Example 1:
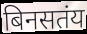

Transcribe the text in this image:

बिनसतंय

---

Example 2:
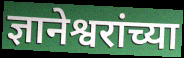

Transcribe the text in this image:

ज्ञानेश्वरांच्या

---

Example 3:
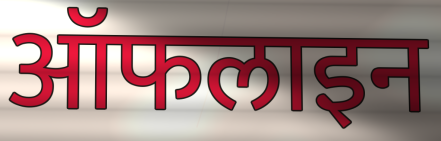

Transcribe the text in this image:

ऑफलाइन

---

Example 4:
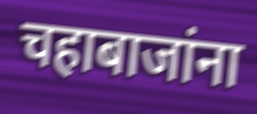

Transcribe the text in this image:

चहाबाजांना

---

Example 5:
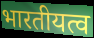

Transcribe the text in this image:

भारतीयत्व